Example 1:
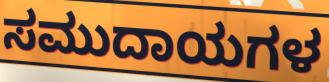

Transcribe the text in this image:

ಸಮುದಾಯಗಳ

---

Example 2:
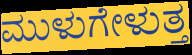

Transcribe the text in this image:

ಮುಳುಗೇಳುತ್ತ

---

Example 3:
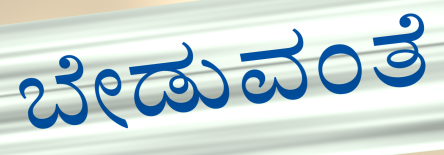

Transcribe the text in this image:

ಬೇಡುವಂತೆ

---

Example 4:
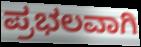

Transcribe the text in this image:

ಪ್ರಭಲವಾಗಿ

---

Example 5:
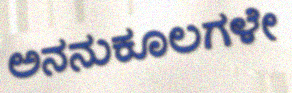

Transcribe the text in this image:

ಅನನುಕೂಲಗಳೇ